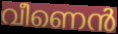
വീണെൻ